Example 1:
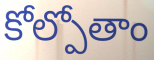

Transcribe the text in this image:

కోల్పోతాం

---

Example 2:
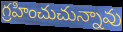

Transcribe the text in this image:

గ్రహించుచున్నావు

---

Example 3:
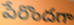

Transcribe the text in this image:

పేరొందగా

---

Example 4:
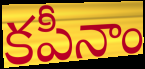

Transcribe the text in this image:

కపీనాం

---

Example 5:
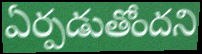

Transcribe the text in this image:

ఏర్పడుతోందని